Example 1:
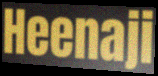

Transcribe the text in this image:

Heenaji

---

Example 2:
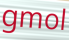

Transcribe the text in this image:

gmol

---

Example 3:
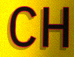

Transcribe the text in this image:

CH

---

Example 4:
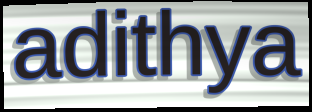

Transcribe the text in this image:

adithya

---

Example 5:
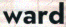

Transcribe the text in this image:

ward